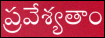
ప్రవేశ్యతాం